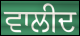
ਵਾਲੀਦ